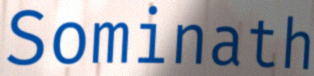
Sominath